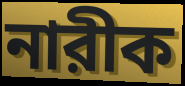
নারীক